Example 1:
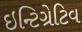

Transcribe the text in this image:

ઇન્ટિગ્રેટિવ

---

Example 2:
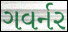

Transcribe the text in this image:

ગવર્નર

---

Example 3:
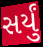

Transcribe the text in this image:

સર્યું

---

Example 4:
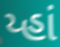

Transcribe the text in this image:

ય્હાં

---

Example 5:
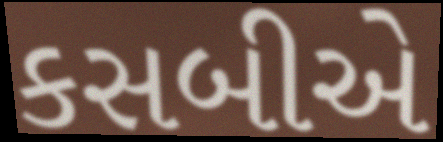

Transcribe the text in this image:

કસબીએ